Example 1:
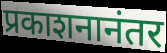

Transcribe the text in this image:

प्रकाशनानंतर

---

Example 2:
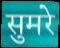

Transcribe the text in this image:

सुमरे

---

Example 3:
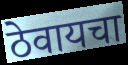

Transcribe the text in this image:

ठेवायचा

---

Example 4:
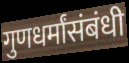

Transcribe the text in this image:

गुणधर्मांसंबंधी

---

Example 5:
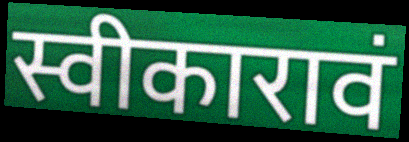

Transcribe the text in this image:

स्वीकारावं